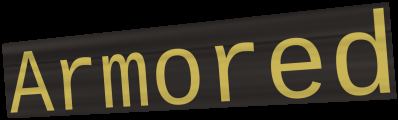
Armored